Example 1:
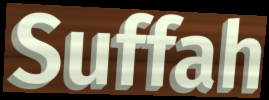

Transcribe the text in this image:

Suffah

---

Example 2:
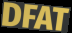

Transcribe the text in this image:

DFAT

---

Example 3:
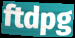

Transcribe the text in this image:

ftdpg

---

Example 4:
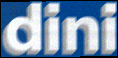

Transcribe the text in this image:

dini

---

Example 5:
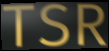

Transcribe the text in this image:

TSR